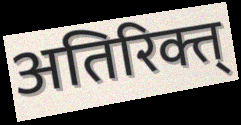
अतिरिक्त्